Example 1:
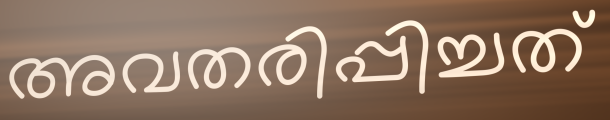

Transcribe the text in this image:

അവതരിപ്പിച്ചത്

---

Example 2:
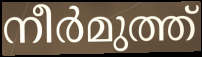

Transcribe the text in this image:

നീർമുത്ത്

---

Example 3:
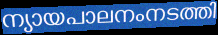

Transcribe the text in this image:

ന്യായപാലനംനടത്തി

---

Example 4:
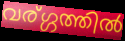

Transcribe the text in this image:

വര്ഗ്ഗത്തിൽ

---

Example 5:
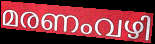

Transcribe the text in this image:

മരണംവഴി